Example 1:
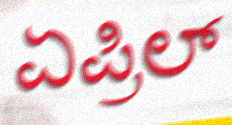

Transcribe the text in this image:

ಏಪ್ರಿಲ್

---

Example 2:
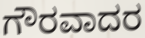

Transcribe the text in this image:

ಗೌರವಾದರ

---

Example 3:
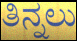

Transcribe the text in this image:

ತಿನ್ನಲು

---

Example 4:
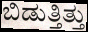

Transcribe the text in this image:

ಬಿಡುತ್ತಿತ್ತು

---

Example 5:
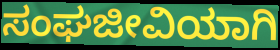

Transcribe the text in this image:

ಸಂಘಜೀವಿಯಾಗಿ